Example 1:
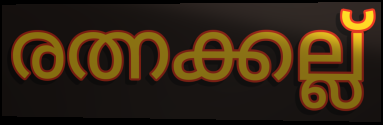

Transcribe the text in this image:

രത്നക്കല്ല്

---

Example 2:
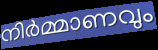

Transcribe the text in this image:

നിർമ്മാണവും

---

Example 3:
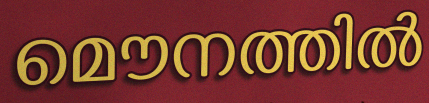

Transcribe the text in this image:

മൌനത്തിൽ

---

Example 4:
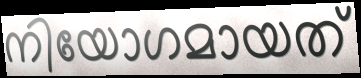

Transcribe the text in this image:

നിയോഗമായത്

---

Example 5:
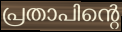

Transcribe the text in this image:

പ്രതാപിന്റെ